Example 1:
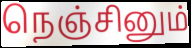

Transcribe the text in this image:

நெஞ்சினும்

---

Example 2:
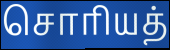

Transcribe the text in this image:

சொரியத்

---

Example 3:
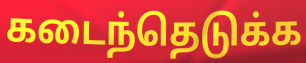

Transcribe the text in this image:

கடைந்தெடுக்க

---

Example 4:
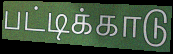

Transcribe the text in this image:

பட்டிக்காடு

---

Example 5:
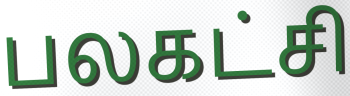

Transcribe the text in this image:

பலகட்சி